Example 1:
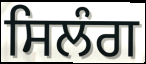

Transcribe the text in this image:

ਸਿਲੰਗ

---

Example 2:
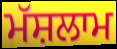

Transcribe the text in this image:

ਮੱਸ਼ਲਾਮ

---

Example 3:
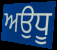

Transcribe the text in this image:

ਅਉਧੂ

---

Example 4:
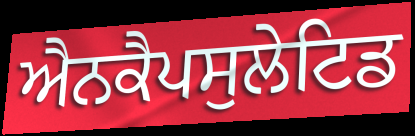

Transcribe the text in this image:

ਐਨਕੈਪਸੁਲੇਟਿਡ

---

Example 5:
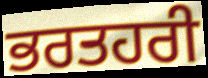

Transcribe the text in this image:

ਭਰਤਹਰੀ